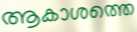
ആകാശത്തെ